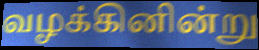
வழக்கினின்று